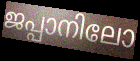
ജപ്പാനിലോ